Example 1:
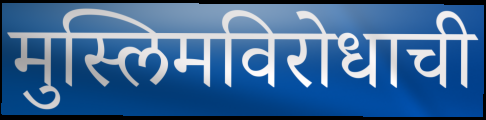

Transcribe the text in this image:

मुस्लिमविरोधाची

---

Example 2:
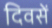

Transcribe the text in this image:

दिवसें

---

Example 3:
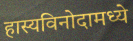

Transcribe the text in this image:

हास्यविनोदामध्ये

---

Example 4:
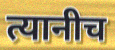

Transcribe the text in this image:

त्यानीच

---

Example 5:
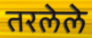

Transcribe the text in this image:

तरलेले